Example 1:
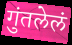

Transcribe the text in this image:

गुंतलेलं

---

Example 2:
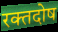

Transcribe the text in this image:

रक्‍तदोष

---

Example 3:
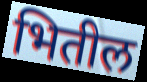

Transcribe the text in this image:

भितील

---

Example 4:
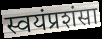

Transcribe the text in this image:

स्वयंप्रशंसा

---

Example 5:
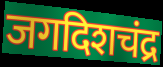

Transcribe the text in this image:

जगदिशचंद्र